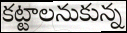
కట్టాలనుకున్న